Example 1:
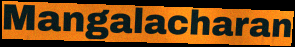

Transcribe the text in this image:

Mangalacharan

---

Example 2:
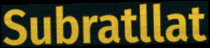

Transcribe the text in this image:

Subratllat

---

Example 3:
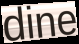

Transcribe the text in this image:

dine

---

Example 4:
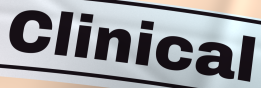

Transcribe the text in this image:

Clinical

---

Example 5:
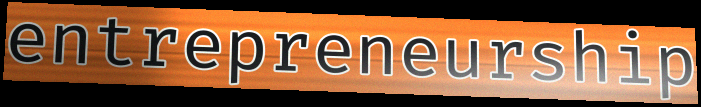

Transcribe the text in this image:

entrepreneurship